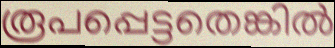
രൂപപ്പെട്ടതെങ്കിൽ